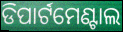
ଡିପାର୍ଟମେଣ୍ଟାଲ